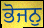
ਭੋਜਨੁ